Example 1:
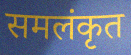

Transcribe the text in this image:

समलंकृत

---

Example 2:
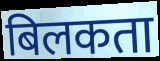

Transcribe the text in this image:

बिलकता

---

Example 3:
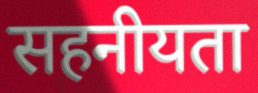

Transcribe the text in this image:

सहनीयता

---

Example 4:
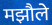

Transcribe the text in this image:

मझौले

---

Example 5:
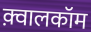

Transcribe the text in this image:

क़्वालकॉम